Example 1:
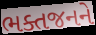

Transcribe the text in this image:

ભક્તજનને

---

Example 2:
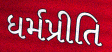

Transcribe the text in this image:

ધર્મપ્રીતિ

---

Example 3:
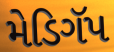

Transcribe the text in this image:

મેડિગૅપ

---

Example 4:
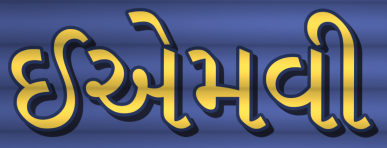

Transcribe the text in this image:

ઈએમવી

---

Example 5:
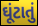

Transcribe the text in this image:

ઘૂંટાતું